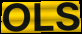
OLS